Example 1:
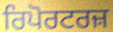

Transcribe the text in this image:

ਰਿਪੋਰਟਰਜ਼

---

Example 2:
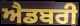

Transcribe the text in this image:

ਐਡਬਰੀ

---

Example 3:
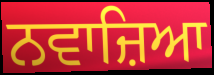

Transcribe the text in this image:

ਨਵਾਜ਼ਿਆ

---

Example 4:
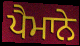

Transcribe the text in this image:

ਪੈਮਾਨੇ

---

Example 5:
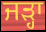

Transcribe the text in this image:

ਜੜ੍ਹਾ